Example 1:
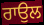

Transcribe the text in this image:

ਰਾਉਲ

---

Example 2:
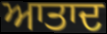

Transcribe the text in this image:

ਆਤਾਦ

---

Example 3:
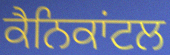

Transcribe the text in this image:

ਕੈਨਿਕਾਂਟਲ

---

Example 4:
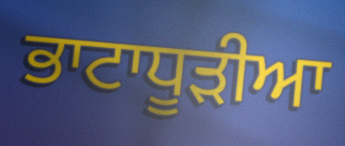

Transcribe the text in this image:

ਭਾਟਾਧੂੜੀਆ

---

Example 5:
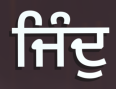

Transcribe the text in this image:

ਜਿੰਦੁ